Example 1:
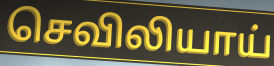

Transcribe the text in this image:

செவிலியாய்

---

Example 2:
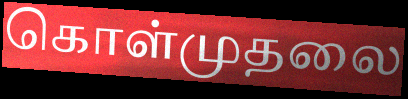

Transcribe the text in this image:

கொள்முதலை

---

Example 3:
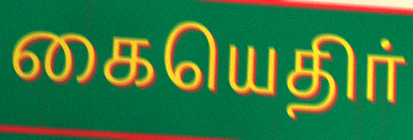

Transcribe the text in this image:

கையெதிர்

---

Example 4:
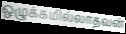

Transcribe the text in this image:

ஒழுக்கமில்லாதவன்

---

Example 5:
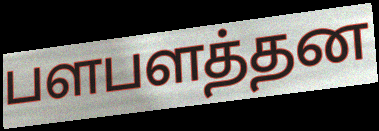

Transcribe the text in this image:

பளபளத்தன